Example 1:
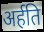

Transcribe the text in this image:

अर्हति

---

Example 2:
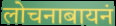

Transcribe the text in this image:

लोचनाबायनं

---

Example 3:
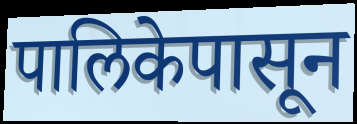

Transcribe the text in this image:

पालिकेपासून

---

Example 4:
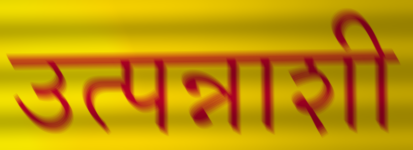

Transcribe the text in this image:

उत्पन्नाशी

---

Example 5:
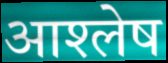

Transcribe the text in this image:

आश्लेष